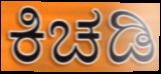
ಕಿಚಡಿ